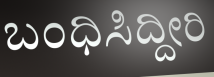
ಬಂಧಿಸಿದ್ದೀರಿ